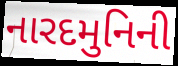
નારદમુનિની